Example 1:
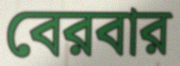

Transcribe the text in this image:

বেরবার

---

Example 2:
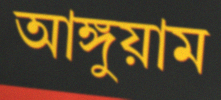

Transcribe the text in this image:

আঙ্গুয়াম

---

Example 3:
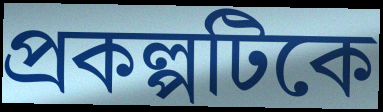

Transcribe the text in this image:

প্রকল্পটিকে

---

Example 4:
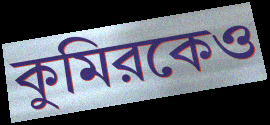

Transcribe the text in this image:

কুমিরকেও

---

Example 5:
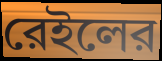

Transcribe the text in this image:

রেইলের